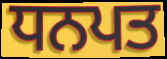
ਧਨਪਤ